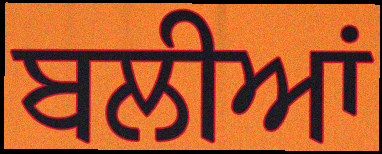
ਬਲੀਆਂ